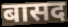
बासद